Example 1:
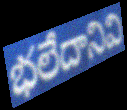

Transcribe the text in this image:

భలేదానివి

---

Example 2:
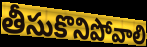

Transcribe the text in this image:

తీసుకొనిపోవాలి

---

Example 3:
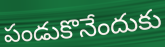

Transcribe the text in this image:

పండుకొనేందుకు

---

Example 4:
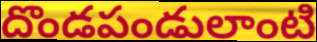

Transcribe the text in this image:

దొండపండులాంటి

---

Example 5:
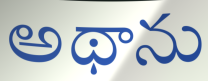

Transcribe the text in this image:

అథాను